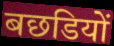
बछडियों